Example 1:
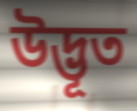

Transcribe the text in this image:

উদ্ভূত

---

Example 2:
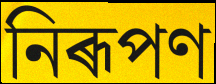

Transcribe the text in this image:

নিৰূপণ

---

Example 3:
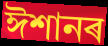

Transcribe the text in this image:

ঈশানৰ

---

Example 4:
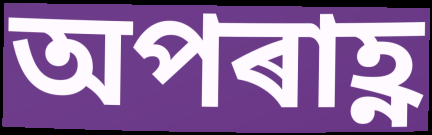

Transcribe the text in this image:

অপৰাহ্ণ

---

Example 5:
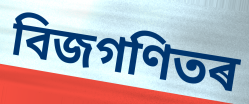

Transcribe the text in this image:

বিজগণিতৰ